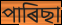
পাৰিছা